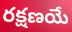
రక్షణయే